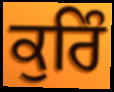
ਕੁਰਿੰ